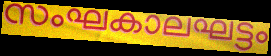
സംഘകാലഘട്ടം